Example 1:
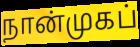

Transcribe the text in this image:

நான்முகப்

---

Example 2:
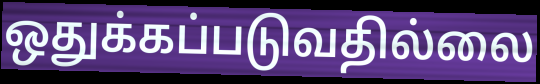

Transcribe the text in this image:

ஒதுக்கப்படுவதில்லை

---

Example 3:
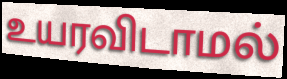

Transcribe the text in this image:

உயரவிடாமல்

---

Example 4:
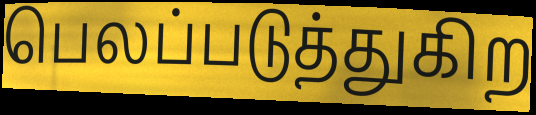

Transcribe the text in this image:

பெலப்படுத்துகிற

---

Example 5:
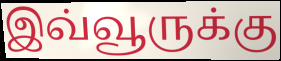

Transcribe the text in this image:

இவ்வூருக்கு